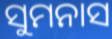
ସୁମନାସ